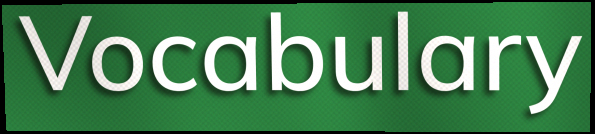
Vocabulary